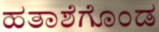
ಹತಾಶೆಗೊಂಡ